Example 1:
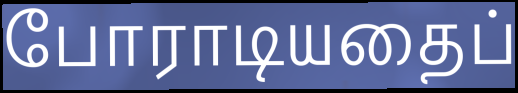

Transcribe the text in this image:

போராடியதைப்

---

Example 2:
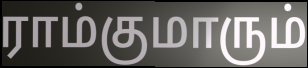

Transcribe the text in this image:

ராம்குமாரும்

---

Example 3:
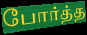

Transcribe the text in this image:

போர்த்த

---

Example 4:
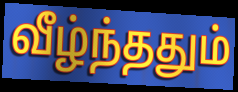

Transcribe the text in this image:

வீழ்ந்ததும்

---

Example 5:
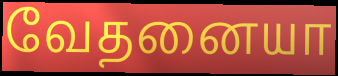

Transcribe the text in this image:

வேதனையா